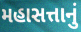
મહાસત્તાનું